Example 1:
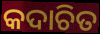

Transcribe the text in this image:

କଦାଚିତ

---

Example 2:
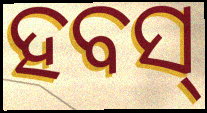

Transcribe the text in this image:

ହବସ୍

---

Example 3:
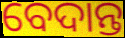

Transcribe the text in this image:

ବେଦାନ୍ତ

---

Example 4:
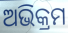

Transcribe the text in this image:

ଅଭିକ୍ରମ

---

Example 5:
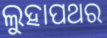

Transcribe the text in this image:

ଲୁହାପଥର